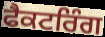
ਫੈਕਟਰਿੰਗ